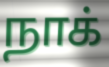
நாக்